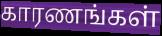
காரணங்கள்